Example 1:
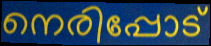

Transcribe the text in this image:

നെരിപ്പോട്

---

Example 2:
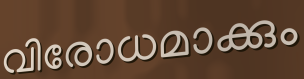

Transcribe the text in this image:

വിരോധമാക്കും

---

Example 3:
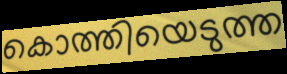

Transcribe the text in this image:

കൊത്തിയെടുത്ത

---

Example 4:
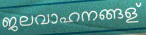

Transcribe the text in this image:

ജലവാഹനങ്ങള്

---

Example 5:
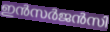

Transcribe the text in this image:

ഇൻസർജൻസി